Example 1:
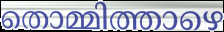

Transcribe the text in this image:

തൊമ്മിത്താഴെ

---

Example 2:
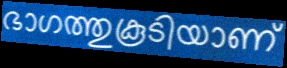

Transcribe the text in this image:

ഭാഗത്തുകൂടിയാണ്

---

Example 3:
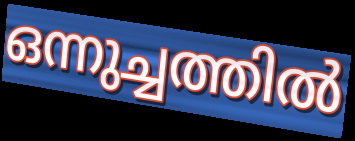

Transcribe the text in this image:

ഒന്നുച്ചത്തിൽ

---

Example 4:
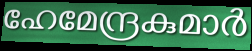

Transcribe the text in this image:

ഹേമേന്ദ്രകുമാർ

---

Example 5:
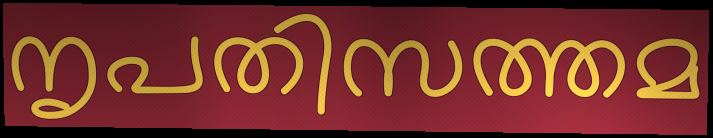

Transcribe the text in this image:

നൃപതിസത്തമ